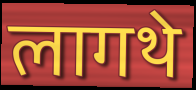
लागथे